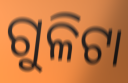
ଗୁଳିଟା